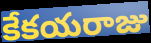
కేకయరాజు